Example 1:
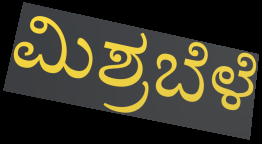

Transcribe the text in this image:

ಮಿಶ್ರಬೆಳೆ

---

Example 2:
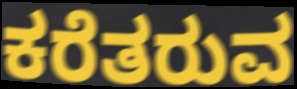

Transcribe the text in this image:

ಕರೆತರುವ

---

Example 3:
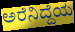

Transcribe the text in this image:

ಅರೆನಿದ್ದೆಯ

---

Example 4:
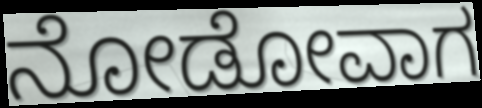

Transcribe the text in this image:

ನೋಡೋವಾಗ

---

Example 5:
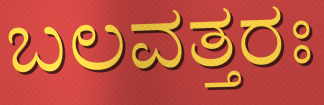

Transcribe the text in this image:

ಬಲವತ್ತರಃ